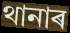
থানাৰ